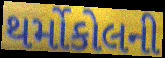
થર્મોકોલની